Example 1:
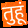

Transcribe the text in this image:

तुहूं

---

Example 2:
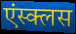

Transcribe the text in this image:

एंस्क्लस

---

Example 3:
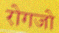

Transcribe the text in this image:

रोगजो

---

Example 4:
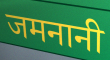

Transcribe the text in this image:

जमनानी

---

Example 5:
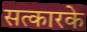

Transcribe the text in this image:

सत्कारके